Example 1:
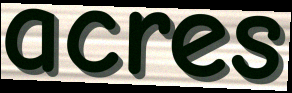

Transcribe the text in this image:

acres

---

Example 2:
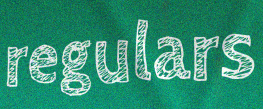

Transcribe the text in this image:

regulars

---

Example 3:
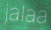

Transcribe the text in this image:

jalaa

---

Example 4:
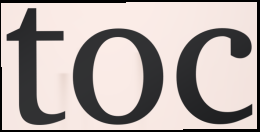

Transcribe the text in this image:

toc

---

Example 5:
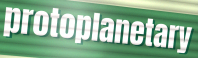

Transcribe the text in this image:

protoplanetary